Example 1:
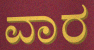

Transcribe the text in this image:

ವಾರ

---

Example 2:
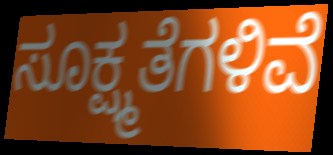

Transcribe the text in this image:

ಸೂಕ್ಷ್ಮತೆಗಳಿವೆ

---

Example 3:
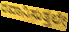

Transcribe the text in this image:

ರವಾನಿಸುತ್ತಲೇ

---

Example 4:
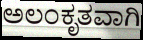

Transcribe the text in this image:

ಅಲಂಕೃತವಾಗಿ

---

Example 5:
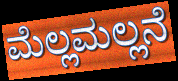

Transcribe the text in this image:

ಮೆಲ್ಲಮಲ್ಲನೆ